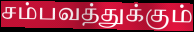
சம்பவத்துக்கும்